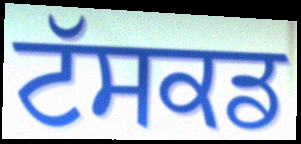
ਟੱਸਕਡ